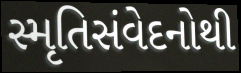
સ્મૃતિસંવેદનોથી